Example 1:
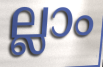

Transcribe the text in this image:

ല്ലാം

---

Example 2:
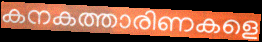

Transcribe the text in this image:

കനകത്താരിണകളെ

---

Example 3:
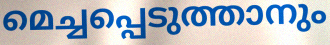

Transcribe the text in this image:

മെച്ചപ്പെടുത്താനും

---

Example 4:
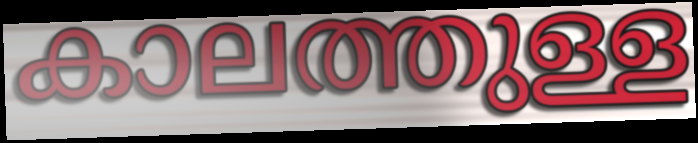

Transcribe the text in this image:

കാലത്തുള്ള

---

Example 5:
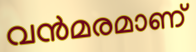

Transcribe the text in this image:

വൻമരമാണ്